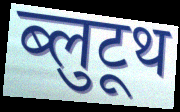
ब्लुटूथ